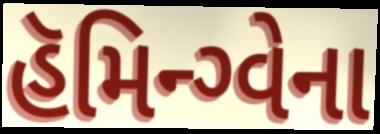
હૅમિન્ગ્વેના